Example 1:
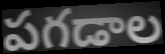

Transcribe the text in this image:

పగడాల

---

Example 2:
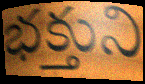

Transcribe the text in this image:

భక్తుని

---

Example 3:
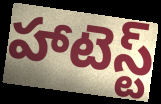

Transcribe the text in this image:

హాటెస్ట్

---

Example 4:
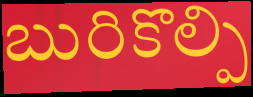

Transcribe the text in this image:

బురికొల్పి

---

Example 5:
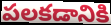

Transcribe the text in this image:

పలకడానికి